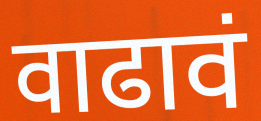
वाढावं